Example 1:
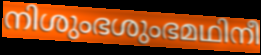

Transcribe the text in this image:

നിശുംഭശുംഭമഥിനീ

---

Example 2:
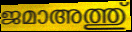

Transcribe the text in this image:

ജമാഅത്തു്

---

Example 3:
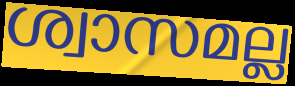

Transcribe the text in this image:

ശ്വാസമല്ല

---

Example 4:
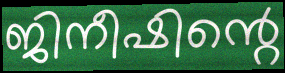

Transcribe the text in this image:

ജിനീഷിന്റെ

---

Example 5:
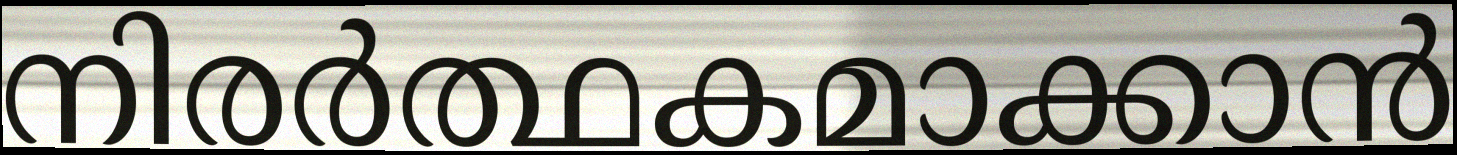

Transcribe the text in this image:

നിരർത്ഥകമാക്കാൻ